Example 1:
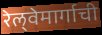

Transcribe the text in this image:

रेल्वेमार्गाची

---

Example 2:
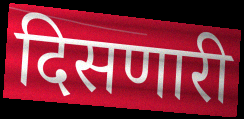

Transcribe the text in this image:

दिसणारी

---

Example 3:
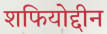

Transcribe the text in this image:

शफियोद्दीन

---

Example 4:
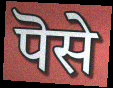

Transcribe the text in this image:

पॆसे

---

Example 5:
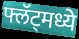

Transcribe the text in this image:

फ्लॅट्मध्ये